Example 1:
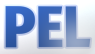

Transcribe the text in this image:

PEL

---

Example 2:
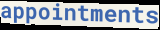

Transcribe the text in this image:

appointments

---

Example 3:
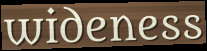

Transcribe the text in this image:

wideness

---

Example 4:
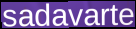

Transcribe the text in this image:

sadavarte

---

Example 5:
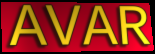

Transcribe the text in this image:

AVAR